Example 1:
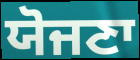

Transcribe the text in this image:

ਯੋਜਣਾ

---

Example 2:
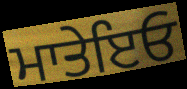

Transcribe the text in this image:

ਮਾਤੇਇਓ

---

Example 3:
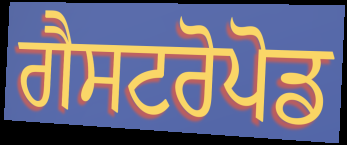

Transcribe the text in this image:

ਗੈਸਟਰੋਪੋਡ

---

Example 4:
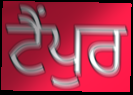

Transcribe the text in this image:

ਟੈਂਪੁਰ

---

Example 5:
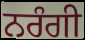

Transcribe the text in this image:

ਨਰੰਗੀ